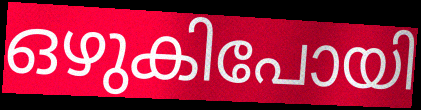
ഒഴുകിപോയി